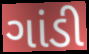
ગાંડી